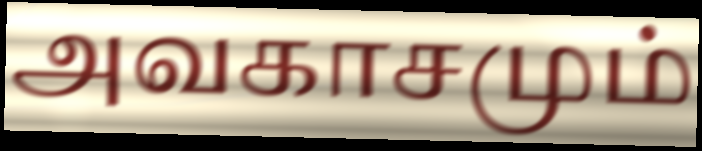
அவகாசமும்